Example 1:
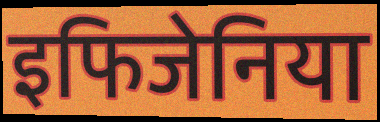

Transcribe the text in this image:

इफिजेनिया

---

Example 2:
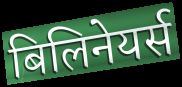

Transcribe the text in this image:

बिलिनेयर्स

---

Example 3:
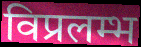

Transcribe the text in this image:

विप्रलम्भ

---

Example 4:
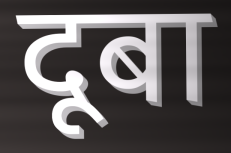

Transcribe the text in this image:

दूबा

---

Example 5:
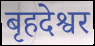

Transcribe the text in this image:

बृहदेश्वर